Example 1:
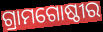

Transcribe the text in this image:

ଗ୍ରାମଗୋଷ୍ଠୀର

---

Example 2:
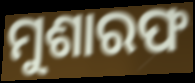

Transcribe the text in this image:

ମୁଶାରଫ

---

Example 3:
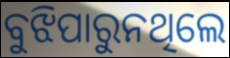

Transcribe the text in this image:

ବୁଝିପାରୁନଥିଲେ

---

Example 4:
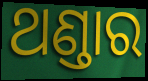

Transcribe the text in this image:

ଥଣ୍ଡାର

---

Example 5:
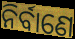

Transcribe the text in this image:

ନିର୍ବାଣେ